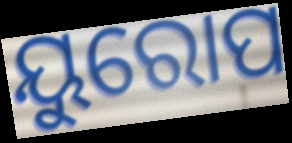
ୟୁରୋପ